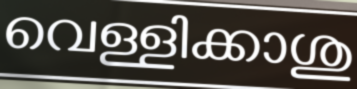
വെള്ളിക്കാശു